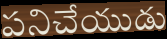
పనిచేయుడు